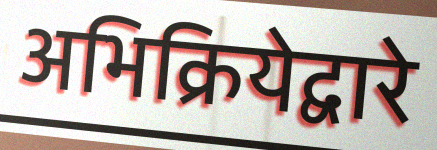
अभिक्रियेद्वारे